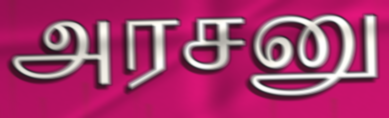
அரசனு